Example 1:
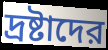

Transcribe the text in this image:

দ্রষ্টাদের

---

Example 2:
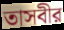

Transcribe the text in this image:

তাসবীর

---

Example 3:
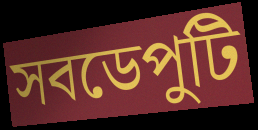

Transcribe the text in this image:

সবডেপুটি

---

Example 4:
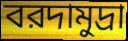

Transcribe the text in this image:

বরদামুদ্রা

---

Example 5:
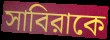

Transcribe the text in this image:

সাবিরাকে